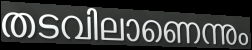
തടവിലാണെന്നും